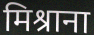
मिश्राना